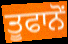
ਤੂਫਾਨੋਂ